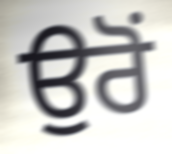
ਉਰੋਂ